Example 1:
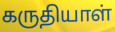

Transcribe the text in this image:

கருதியாள்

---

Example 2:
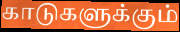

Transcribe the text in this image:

காடுகளுக்கும்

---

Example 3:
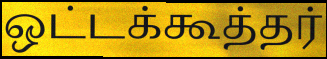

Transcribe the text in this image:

ஒட்டக்கூத்தர்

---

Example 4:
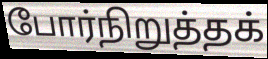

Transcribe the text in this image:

போர்நிறுத்தக்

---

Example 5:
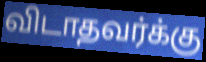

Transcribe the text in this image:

விடாதவர்க்கு